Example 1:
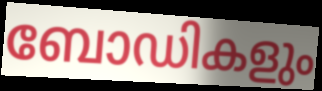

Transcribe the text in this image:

ബോഡികളും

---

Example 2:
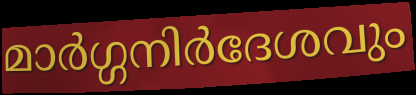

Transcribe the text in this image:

മാർഗ്ഗനിർദേശവും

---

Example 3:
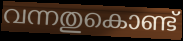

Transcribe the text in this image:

വന്നതുകൊണ്ട്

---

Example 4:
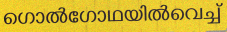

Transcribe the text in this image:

ഗൊൽഗോഥയിൽവെച്ച്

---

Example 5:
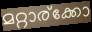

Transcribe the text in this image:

മറ്റാര്ക്കോ